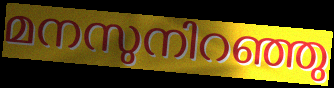
മനസുനിറഞ്ഞു